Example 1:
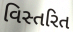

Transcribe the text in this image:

વિસ્તરિત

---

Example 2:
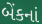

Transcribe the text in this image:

બેંકનાં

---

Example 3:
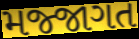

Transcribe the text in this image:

મજ્જાગત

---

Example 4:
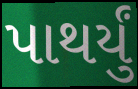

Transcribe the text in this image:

પાથર્યું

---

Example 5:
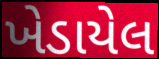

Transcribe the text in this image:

ખેડાયેલ